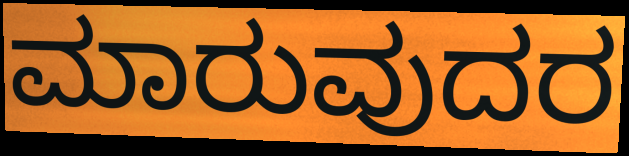
ಮಾರುವುದರ